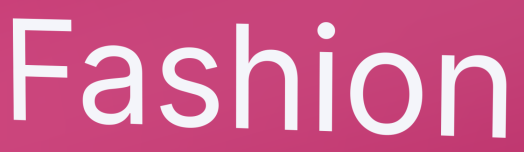
Fashion